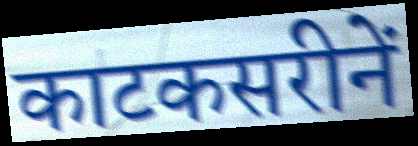
काटकसरीनें